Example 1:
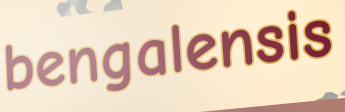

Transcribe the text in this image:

bengalensis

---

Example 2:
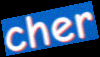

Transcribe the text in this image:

cher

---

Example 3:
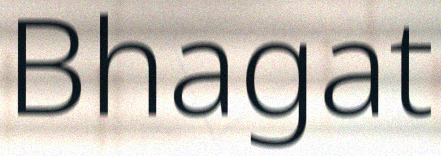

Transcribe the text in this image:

Bhagat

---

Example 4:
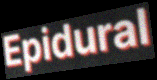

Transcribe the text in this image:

Epidural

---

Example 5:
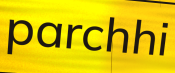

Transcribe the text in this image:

parchhi